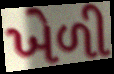
ખેળી